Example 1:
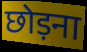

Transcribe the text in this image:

छोड़ना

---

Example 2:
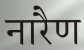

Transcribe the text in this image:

नारैण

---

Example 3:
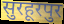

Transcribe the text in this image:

सुरहूरपुर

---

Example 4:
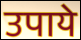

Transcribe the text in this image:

उपाये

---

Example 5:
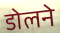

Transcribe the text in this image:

डोलने